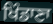
ਖਿੰਡਾਣਾ